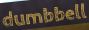
dumbbell